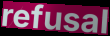
refusal